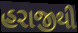
હરાજીથી